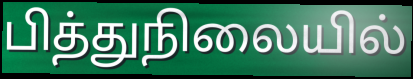
பித்துநிலையில்